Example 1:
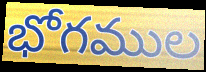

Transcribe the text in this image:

భోగముల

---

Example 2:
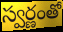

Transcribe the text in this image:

స్వర్ణంతో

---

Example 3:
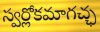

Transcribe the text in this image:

స్వర్లోకమాగచ్ఛ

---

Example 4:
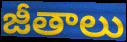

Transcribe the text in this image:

జీతాలు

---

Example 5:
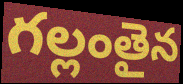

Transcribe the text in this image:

గల్లంతైన